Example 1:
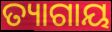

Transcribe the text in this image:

ତ୍ୟାଗାୟ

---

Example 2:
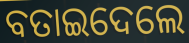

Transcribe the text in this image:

ବତାଇଦେଲେ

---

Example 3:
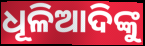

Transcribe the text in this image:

ଧୂଳିଆଦିଙ୍କୁ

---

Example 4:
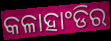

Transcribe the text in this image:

କଳାହାଂଡିର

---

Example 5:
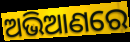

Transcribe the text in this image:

ଅଭିଆଣରେ